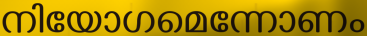
നിയോഗമെന്നോണം